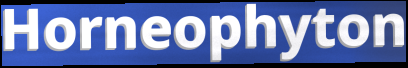
Horneophyton